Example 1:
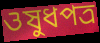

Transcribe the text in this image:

ওষুধপত্র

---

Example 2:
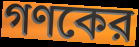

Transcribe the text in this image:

গণকের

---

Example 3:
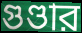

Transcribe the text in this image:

গুণ্ডার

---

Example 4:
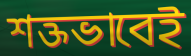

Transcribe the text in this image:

শক্তভাবেই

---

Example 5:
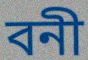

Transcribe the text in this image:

বনী